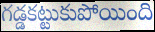
గడ్డకట్టుకుపోయింది